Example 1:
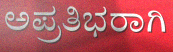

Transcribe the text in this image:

ಅಪ್ರತಿಭರಾಗಿ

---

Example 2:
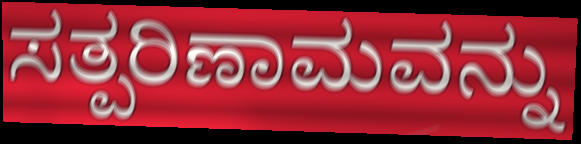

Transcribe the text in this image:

ಸತ್ಪರಿಣಾಮವನ್ನು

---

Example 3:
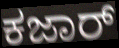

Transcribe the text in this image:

ಕಜಾರ್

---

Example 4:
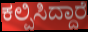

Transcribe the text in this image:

ಕಲ್ಪಿಸಿದ್ದಾರೆ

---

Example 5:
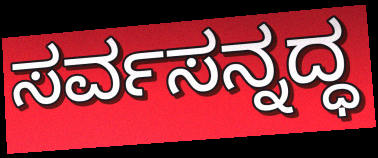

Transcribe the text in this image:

ಸರ್ವಸನ್ನದ್ಧ